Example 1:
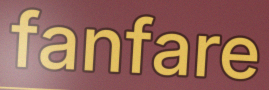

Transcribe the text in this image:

fanfare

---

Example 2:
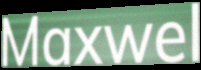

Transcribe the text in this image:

Maxwel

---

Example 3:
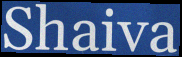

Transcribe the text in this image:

Shaiva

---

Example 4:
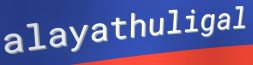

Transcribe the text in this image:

alayathuligal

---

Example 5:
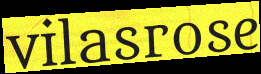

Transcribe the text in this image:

vilasrose